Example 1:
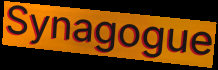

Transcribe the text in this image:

Synagogue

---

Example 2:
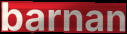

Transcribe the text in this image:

barnan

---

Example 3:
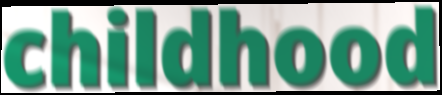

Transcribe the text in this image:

childhood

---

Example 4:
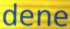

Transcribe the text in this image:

dene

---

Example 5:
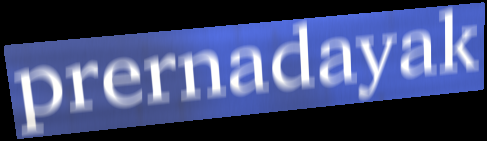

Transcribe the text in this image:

prernadayak